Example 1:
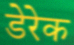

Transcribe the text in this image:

डेरेक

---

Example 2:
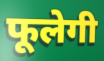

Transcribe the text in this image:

फूलेगी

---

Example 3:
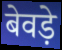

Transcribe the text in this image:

बेवड़े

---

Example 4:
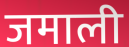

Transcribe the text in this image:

जमाली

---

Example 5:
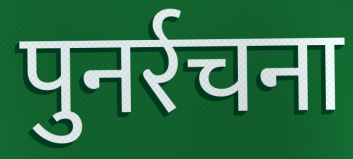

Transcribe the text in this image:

पुनर्रचना